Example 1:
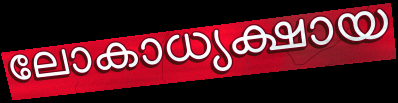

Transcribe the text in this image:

ലോകാധ്യക്ഷായ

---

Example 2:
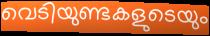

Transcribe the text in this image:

വെടിയുണ്ടകളുടെയും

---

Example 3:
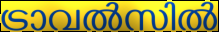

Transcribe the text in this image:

ട്രാവൽസിൽ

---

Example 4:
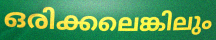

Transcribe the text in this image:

ഒരിക്കലെങ്കിലും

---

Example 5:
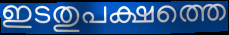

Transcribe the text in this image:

ഇടതുപക്ഷത്തെ